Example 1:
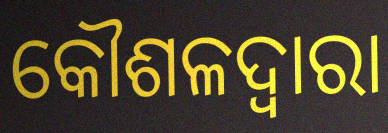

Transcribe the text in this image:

କୌଶଳଦ୍ୱାରା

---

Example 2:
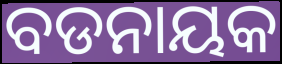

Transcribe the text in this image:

ବଡନାୟକ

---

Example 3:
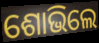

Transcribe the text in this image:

ଶୋଭିଲେ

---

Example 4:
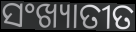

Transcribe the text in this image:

ସଂଖ୍ୟାତୀତ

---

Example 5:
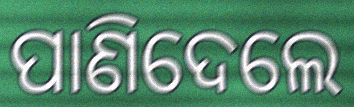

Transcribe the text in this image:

ପାଣିଦେଲେ